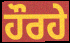
ਹੌਰਹੇ